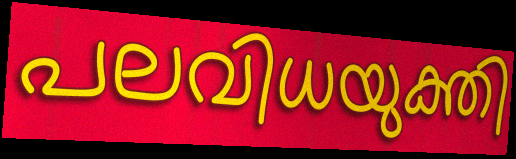
പലവിധയുക്തി